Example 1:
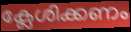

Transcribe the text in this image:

ക്ലേശിക്കണം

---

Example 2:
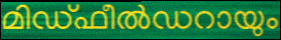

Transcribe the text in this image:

മിഡ്ഫീൽഡറായും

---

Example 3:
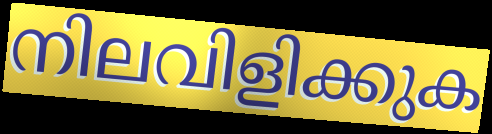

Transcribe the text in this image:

നിലവിളിക്കുക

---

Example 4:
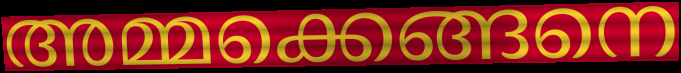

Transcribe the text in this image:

അമ്മക്കെങ്ങനെ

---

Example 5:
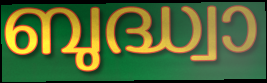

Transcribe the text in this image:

ബുദ്ധ്വാ